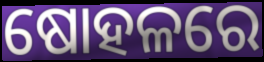
ଷୋହଳରେ